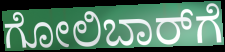
ಗೋಲಿಬಾರ್‌ಗೆ